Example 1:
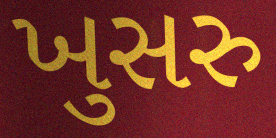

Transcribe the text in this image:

ખુસરુ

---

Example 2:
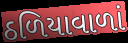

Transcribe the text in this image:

ઠળિયાવાળાં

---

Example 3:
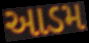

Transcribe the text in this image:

આડમ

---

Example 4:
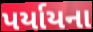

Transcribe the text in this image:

પર્યાયના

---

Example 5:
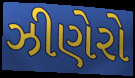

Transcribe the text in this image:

ઝીણેરો